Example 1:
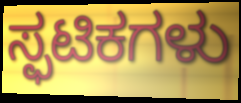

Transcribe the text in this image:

ಸ್ಫಟಿಕಗಳು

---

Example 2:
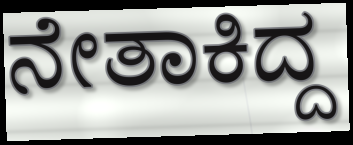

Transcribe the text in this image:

ನೇತಾಕಿದ್ದ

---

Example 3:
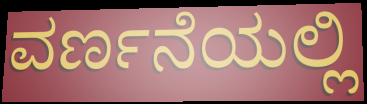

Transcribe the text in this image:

ವರ್ಣನೆಯಲ್ಲಿ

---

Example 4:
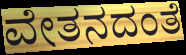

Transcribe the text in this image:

ವೇತನದಂತೆ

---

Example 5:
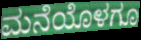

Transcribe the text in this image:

ಮನೆಯೊಳಗೂ